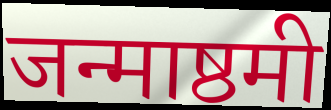
जन्माष्ठमी